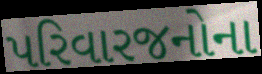
પરિવારજનોના